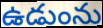
ఉడుంను